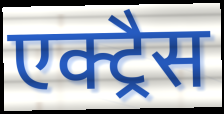
एक्ट्रैस